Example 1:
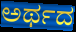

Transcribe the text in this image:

ಅರ್ಥದ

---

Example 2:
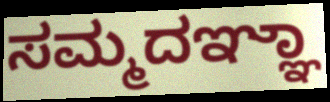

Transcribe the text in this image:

ಸಮ್ಮದಞ್ಞಾ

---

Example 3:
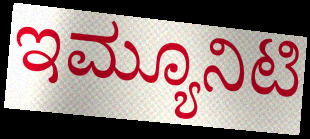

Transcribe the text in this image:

ಇಮ್ಯೂನಿಟಿ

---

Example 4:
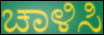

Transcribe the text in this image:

ಚಾಳಿಸಿ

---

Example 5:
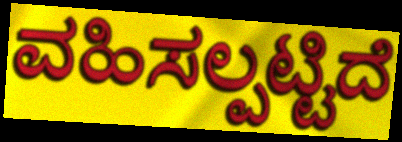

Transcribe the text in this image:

ವಹಿಸಲ್ಪಟ್ಟಿದೆ